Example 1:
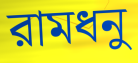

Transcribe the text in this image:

রামধনু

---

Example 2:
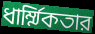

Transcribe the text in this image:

ধার্ম্মিকতার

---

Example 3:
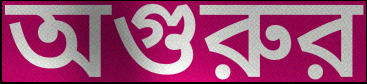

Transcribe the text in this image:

অগুরুর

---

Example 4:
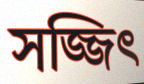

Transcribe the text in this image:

সজ্জিৎ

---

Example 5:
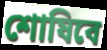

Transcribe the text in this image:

শোষিবে